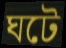
ঘটে